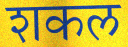
शकल